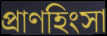
প্রাণহিংসা